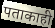
पताकाही